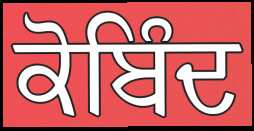
ਕੋਬਿੰਦ